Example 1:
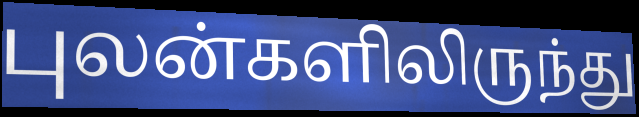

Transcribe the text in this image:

புலன்களிலிருந்து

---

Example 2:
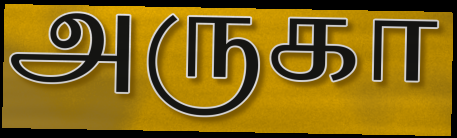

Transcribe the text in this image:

அருகா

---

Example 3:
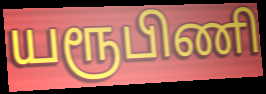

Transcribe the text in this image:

யரூபிணி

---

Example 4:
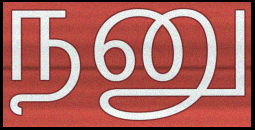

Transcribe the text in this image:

நனு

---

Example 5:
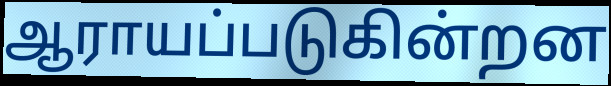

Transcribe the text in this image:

ஆராயப்படுகின்றன